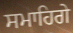
ਸਮਾਹਿਗੇ